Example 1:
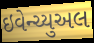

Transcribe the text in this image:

ઇવેન્ચ્યુઅલ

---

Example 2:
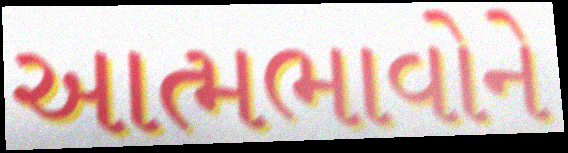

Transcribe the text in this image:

આત્મભાવોને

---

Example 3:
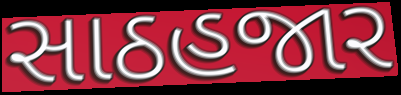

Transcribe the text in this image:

સાઠહજાર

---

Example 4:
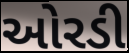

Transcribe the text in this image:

ઓરડી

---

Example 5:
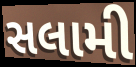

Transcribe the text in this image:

સલામી